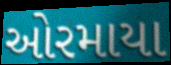
ઓરમાયા